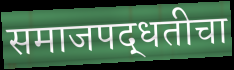
समाजपद्धतीचा